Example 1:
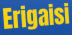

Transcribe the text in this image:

Erigaisi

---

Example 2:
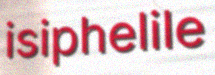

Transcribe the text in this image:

isiphelile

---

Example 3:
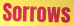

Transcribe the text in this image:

Sorrows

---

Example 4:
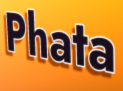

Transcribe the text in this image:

Phata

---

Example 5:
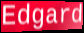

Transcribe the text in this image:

Edgard